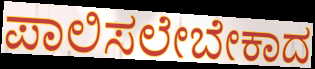
ಪಾಲಿಸಲೇಬೇಕಾದ